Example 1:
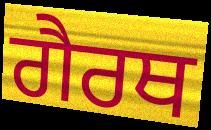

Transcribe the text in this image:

ਗੈਰਥ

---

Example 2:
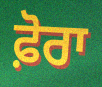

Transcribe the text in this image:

ਫ਼ੋਰਾ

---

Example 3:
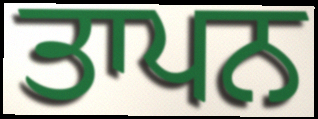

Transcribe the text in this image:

ਤਾਪਨ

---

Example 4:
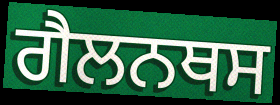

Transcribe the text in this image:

ਗੈਲਨਥਸ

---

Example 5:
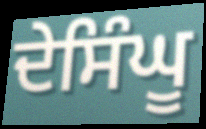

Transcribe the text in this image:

ਦੇਸਿੰਘੂ